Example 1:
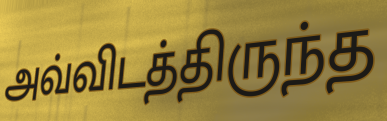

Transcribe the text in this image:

அவ்விடத்திருந்த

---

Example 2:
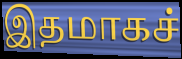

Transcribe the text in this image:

இதமாகச்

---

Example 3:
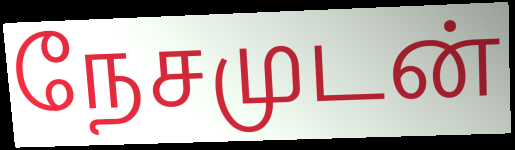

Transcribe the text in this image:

நேசமுடன்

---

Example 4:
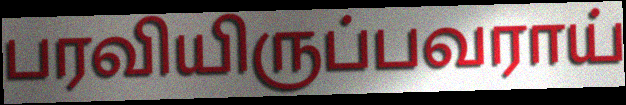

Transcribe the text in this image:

பரவியிருப்பவராய்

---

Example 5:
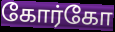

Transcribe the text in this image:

கோர்கோ